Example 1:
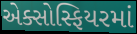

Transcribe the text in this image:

એક્સોસ્ફિયરમાં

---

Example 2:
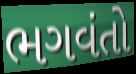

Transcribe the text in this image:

ભગવંતો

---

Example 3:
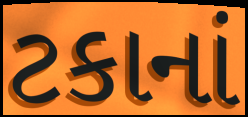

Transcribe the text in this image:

ટકાનાં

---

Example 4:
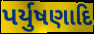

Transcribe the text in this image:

પર્યુષણાદિ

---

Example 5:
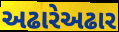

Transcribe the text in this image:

અઢારેઅઢાર